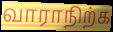
வாராநிற்க